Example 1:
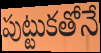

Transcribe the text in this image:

పుట్టుకతోనే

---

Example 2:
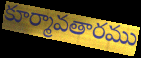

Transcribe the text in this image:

కూర్మావతారము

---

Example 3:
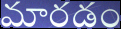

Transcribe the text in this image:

మారడం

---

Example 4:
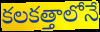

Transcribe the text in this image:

కలకత్తాలోనే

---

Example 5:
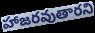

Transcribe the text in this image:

హాజరవుతారని